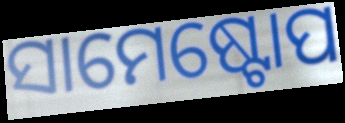
ସାମେଷ୍ଟୋପ